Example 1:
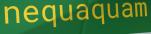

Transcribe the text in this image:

nequaquam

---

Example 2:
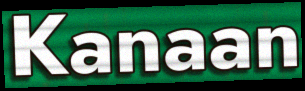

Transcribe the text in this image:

Kanaan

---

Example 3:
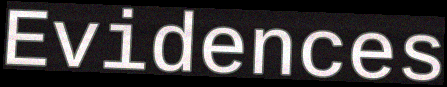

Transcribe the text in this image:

Evidences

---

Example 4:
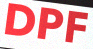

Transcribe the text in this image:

DPF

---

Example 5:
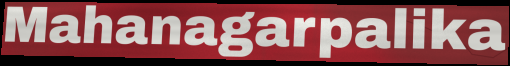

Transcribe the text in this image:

Mahanagarpalika